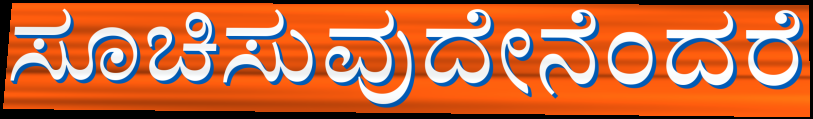
ಸೂಚಿಸುವುದೇನೆಂದರೆ